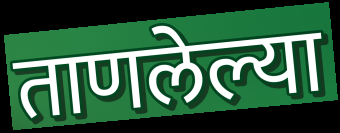
ताणलेल्या